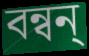
বন্বন্